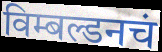
विम्बल्डनचं